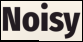
Noisy